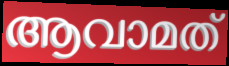
ആവാമത്